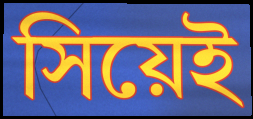
সিয়েই